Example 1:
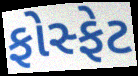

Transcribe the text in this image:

ફોસ્ફેટ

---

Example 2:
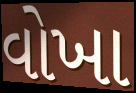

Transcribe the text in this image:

વોખા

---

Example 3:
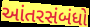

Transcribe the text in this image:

આંતરસંબંધો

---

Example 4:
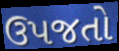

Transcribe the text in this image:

ઉપજતો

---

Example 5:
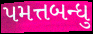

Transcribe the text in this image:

પમત્તબન્ધુ